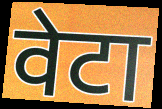
वेटा